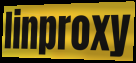
linproxy